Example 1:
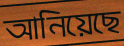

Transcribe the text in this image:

আনিয়েছে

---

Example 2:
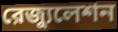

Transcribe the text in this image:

রেজ্যুলেশন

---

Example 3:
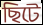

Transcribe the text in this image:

ছিটে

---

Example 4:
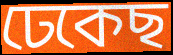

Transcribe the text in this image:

ঢেকেছ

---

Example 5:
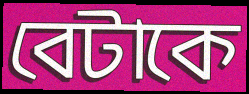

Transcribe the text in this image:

বেটাকে